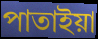
পাতাইয়া